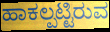
ಹಾಕಲ್ಪಟ್ಟಿರುವ